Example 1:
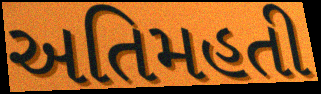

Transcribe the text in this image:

અતિમહતી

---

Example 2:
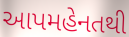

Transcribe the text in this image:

આપમહેનતથી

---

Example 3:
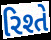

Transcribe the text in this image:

રિશ્તે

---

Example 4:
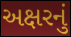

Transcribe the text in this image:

અક્ષરનું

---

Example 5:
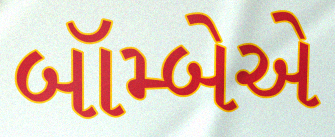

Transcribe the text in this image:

બૉમ્બેએ